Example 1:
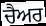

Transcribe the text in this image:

ਚੈਅਰ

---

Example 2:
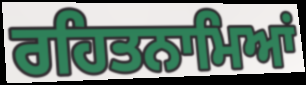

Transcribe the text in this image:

ਰਹਿਤਨਾਮਿਆਂ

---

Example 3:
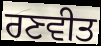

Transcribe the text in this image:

ਰਣਵੀਤ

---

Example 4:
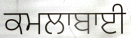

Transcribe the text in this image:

ਕਮਲਾਬਾਈ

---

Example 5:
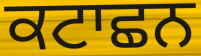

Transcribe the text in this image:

ਕਟਾਛਨ